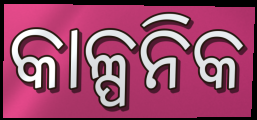
କାଳ୍ପନିକ